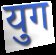
युग